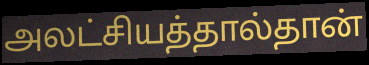
அலட்சியத்தால்தான்